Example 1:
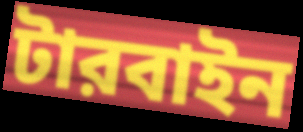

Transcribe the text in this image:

টারবাইন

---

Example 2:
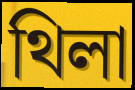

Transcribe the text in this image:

থিলা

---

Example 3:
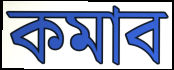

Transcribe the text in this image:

কমাব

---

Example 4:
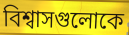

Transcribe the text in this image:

বিশ্বাসগুলোকে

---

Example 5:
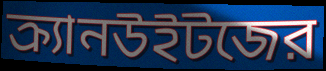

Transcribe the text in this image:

ক্র্যানউইটজের